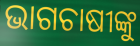
ଭାଗଚାଷୀଙ୍କୁ